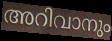
അറിവാനും